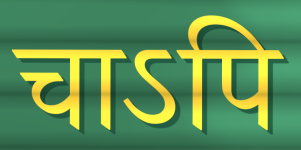
चाऽपि